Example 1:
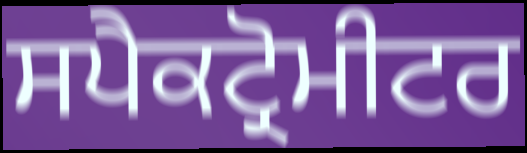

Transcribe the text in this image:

ਸਪੈਕਟ੍ਰੋਮੀਟਰ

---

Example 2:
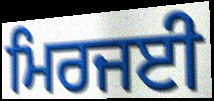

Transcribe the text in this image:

ਮਿਰਜਈ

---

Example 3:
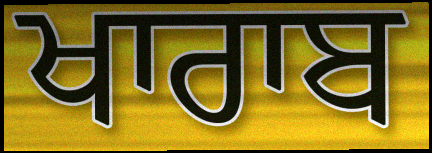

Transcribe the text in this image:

ਖਾਰਾਬ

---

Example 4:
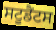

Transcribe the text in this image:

ਸਟੂਡੈਂਟਸ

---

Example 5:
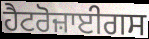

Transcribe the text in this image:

ਹੈਟਰੋਜ਼ਾਈਗਸ